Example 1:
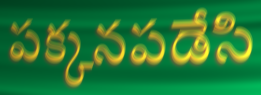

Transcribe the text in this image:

పక్కనపడేసి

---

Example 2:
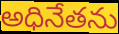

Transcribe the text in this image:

అధినేతను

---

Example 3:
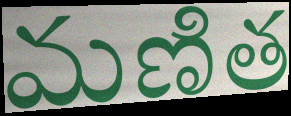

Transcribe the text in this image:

మణిత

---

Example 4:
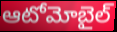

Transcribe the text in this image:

ఆటోమోబైల్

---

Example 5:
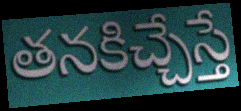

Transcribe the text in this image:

తనకిచ్చేస్తే